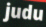
judu